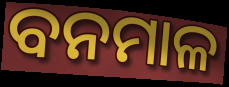
ବନମାଳ